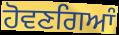
ਹੋਵਣਗਿਆੰ